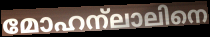
മോഹന്ലാലിനെ